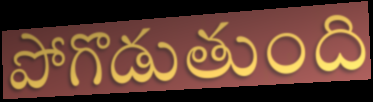
పోగొడుతుంది